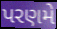
પરણમે